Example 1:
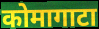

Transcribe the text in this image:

कोमागाटा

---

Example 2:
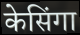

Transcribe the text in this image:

केसिंगा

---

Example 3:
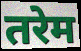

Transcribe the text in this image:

तरेम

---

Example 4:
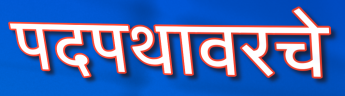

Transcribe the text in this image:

पदपथावरचे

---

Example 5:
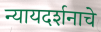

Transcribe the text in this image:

न्यायदर्शनाचे